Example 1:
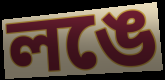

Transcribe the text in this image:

লঙে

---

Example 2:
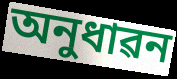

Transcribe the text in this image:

অনুধাৱন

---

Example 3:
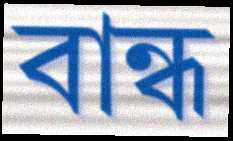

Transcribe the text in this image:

বান্ধ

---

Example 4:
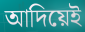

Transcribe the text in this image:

আদিয়েই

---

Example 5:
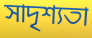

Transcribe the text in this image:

সাদৃশ্যতা